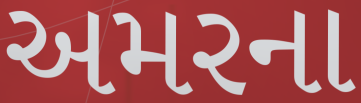
અમરના